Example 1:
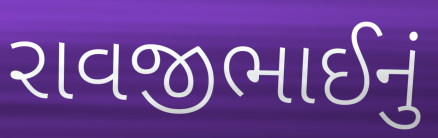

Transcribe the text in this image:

રાવજીભાઈનું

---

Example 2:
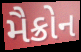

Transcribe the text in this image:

મૈક્રોન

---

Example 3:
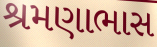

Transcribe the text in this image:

શ્રમણાભાસ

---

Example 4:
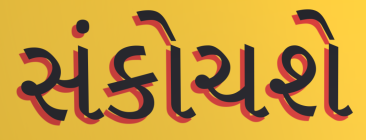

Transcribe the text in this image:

સંકોચશે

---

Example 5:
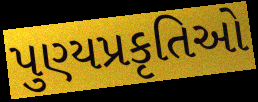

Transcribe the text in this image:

પુણ્યપ્રકૃતિઓ